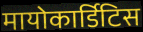
मायोकार्डिटिस